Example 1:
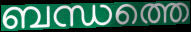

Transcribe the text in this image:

ബന്ധത്തെ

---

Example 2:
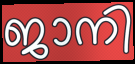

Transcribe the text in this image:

ജാനി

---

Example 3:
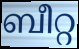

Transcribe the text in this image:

ബീറ്റ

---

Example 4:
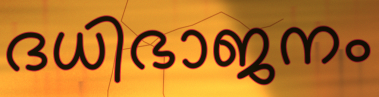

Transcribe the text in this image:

ദധിഭാജനം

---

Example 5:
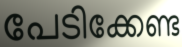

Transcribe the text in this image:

പേടിക്കേണ്ട